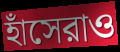
হাঁসেরাও